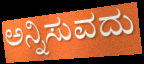
ಅನ್ನಿಸುವದು